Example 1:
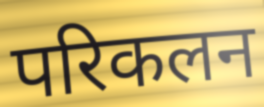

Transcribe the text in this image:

परिकलन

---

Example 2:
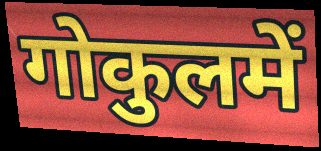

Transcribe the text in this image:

गोकुलमें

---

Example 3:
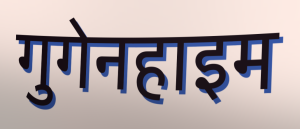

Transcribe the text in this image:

गुगेनहाइम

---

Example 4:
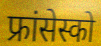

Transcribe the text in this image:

फ्रांसेस्को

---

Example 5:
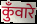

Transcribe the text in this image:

कुँवारे